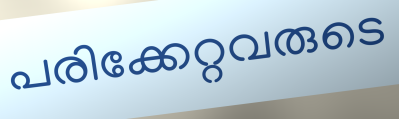
പരിക്കേറ്റവരുടെ